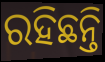
ରହିଛନ୍ତି